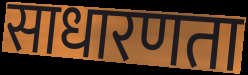
साधारणता